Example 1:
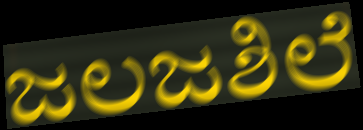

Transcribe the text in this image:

ಜಲಜಶಿಲೆ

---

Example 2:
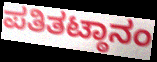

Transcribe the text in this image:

ಪತಿತಟ್ಠಾನಂ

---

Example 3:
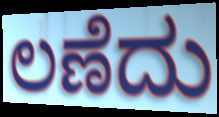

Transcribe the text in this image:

ಲಣೆದು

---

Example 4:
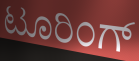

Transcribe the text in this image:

ಟೂರಿಂಗ್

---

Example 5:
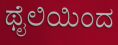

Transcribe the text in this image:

ಥೈಲಿಯಿಂದ